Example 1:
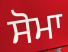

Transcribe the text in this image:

ਸੋਮਾ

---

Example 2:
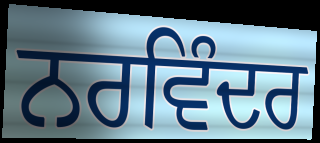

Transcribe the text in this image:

ਨਰਵਿੰਦਰ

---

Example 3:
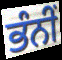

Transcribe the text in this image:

ਭੰਨੀਂ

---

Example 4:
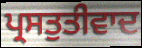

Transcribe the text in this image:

ਪ੍ਰਸਤੁਤੀਵਾਦ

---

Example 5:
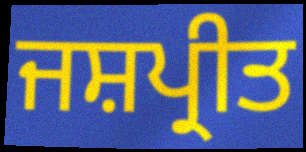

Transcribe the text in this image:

ਜਸ਼ਪ੍ਰੀਤ